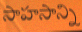
సాహసాన్ని